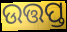
ଉତ୍ତପ୍ତ